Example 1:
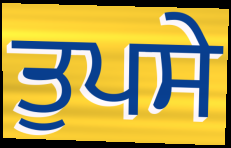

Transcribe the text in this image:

ਤੁਪਸੇ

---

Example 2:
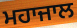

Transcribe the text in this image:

ਮਹਾਜਾਲ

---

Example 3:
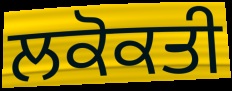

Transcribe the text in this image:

ਲਕੋਕਤੀ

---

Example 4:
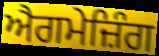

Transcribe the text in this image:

ਐਗਮੇਜ਼ਿੰਗ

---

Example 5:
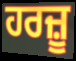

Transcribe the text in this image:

ਹਰਜ਼ੂ